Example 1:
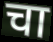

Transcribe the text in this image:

चा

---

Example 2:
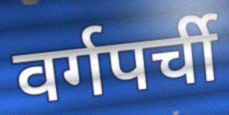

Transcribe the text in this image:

वर्गपर्ची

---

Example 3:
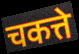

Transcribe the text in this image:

चकत्ते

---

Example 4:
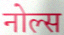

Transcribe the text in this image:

नोल्स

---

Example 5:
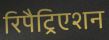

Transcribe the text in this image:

रिपैट्रिएशन